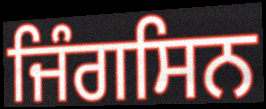
ਜਿੰਗਸਿਨ